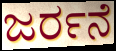
ಜರ್ರನೆ